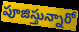
పూజిస్తున్నారో